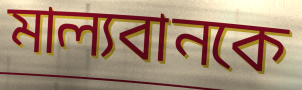
মাল্যবানকে